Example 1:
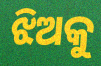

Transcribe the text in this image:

ଝିଅକୁ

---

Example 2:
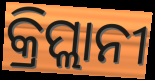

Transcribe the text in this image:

କ୍ରିପ୍ଲାନୀ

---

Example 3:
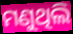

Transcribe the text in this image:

ମଣୁଥିଲି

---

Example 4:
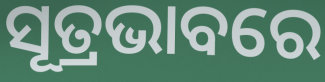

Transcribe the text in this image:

ସୂତ୍ରଭାବରେ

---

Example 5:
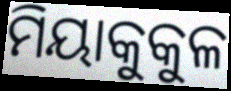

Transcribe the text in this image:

ମିୟାକୁକୁଳ